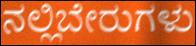
ನಲ್ಲಿಬೇರುಗಳು